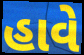
હાવે